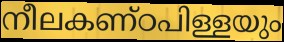
നീലകണ്ഠപിള്ളയും